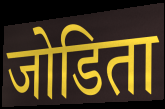
जोडिता